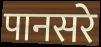
पानसरे